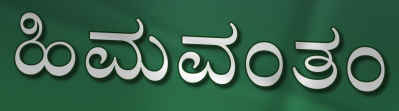
ಹಿಮವಂತಂ